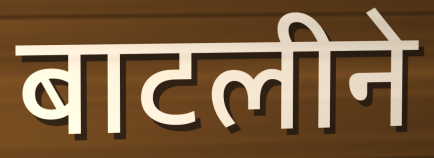
बाटलीने